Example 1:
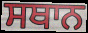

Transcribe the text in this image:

ਸਥਾਨ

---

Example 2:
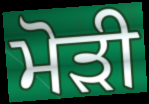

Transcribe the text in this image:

ਮੋੜੀ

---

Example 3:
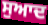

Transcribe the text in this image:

ਸੁਆਦ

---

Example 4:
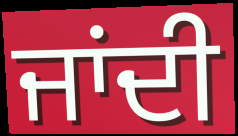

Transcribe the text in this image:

ਜਾਂਦੀ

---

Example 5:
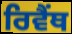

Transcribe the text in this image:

ਰਿਵੈਂਥ